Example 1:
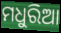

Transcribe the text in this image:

ମଧୁରିଆ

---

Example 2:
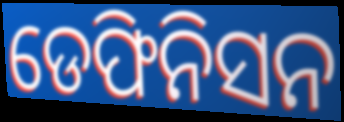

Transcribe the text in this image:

ଡେଫିନିସନ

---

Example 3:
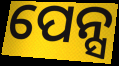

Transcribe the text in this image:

ପେନ୍ସ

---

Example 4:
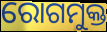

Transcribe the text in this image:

ରୋଗମୁକ୍ତ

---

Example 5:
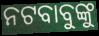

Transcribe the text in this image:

ନଟବାବୁଙ୍କୁ